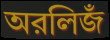
অরলিজঁ